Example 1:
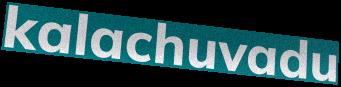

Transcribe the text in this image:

kalachuvadu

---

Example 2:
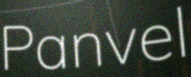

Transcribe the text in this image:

Panvel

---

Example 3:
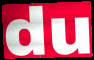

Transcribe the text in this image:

du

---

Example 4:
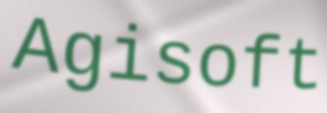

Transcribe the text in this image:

Agisoft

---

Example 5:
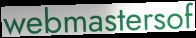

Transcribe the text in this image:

webmastersof